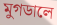
মুগডালে